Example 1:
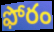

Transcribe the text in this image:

ఫోరం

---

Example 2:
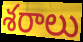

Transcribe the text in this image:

శరాలు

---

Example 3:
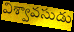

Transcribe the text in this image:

విశ్వావసుడు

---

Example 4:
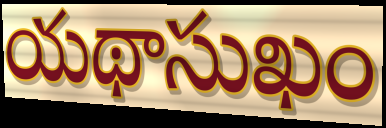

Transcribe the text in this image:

యథాసుఖం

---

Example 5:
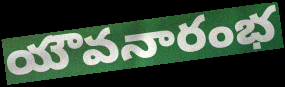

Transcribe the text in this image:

యౌవనారంభ